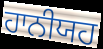
ਹਾਨੀਯਹ